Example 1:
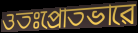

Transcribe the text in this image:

ওতঃপ্ৰোতভাৱে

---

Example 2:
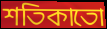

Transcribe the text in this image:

শতিকাতো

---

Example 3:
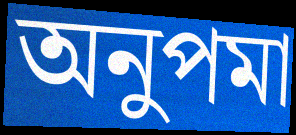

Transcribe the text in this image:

অনুপমা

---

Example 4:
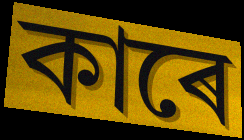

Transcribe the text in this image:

কাৰে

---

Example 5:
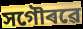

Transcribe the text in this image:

সগৌৰৱে